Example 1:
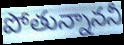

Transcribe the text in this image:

పోతున్నాననీ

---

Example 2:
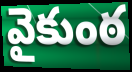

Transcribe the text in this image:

వైకుంఠ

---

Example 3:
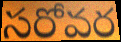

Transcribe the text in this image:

సరోవర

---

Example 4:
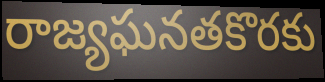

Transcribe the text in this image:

రాజ్యఘనతకొరకు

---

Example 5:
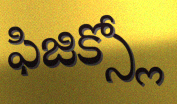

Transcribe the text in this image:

ఫిజిక్స్లో